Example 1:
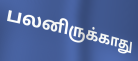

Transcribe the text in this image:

பலனிருக்காது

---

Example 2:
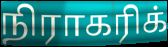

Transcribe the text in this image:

நிராகரிக்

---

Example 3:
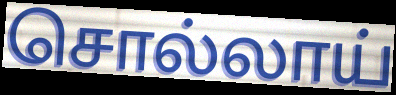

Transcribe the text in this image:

சொல்லாய்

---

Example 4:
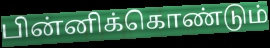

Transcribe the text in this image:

பின்னிக்கொண்டும்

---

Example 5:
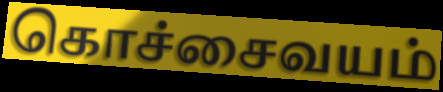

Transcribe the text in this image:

கொச்சைவயம்